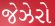
જેઝેરો